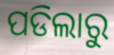
ପଡିଲାରୁ